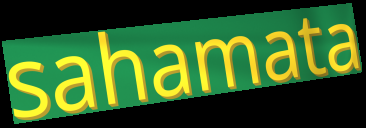
sahamata